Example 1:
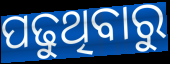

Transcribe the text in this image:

ପଢୁଥିବାରୁ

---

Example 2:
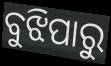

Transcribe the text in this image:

ବୁଝିପାରୁ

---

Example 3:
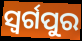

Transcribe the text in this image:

ସ୍ଵର୍ଗପୁର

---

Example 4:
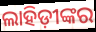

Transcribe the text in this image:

ଲାହିଡ଼ୀଙ୍କର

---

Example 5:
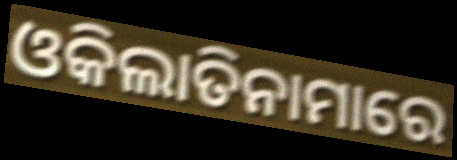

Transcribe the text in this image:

ଓକିଲାତିନାମାରେ